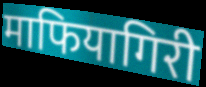
माफियागिरी